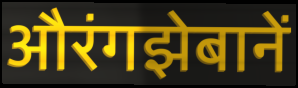
औरंगझेबानें